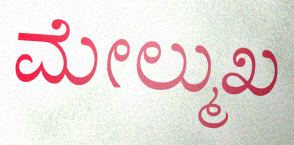
ಮೇಲ್ಮುಖ